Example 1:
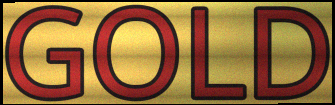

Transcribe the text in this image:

GOLD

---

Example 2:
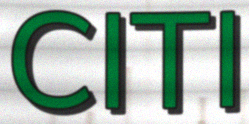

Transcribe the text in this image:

CITI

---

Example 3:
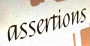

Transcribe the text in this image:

assertions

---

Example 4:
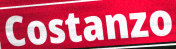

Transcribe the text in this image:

Costanzo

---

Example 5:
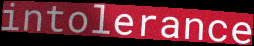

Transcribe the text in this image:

intolerance